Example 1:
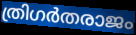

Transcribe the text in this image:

ത്രിഗർതരാജം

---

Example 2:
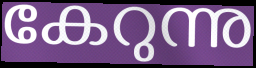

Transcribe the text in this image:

കേറുന്നു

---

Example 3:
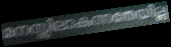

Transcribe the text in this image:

മനസ്സിലാകുന്നതേയില്ല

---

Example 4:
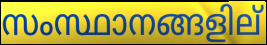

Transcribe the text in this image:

സംസ്ഥാനങ്ങളില്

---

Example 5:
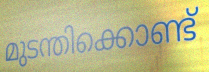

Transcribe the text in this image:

മുടന്തിക്കൊണ്ട്